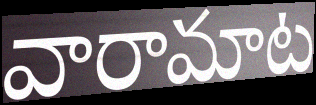
వారామాట